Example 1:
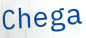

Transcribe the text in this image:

Chega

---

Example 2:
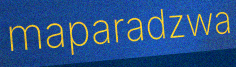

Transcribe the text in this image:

maparadzwa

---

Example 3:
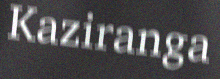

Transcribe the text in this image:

Kaziranga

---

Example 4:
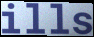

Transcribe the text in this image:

ills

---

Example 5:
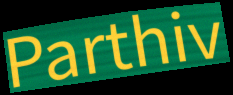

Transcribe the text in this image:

Parthiv